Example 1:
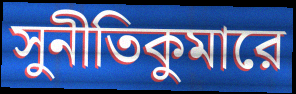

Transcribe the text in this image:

সুনীতিকুমারে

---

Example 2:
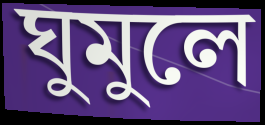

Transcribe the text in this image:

ঘুমুলে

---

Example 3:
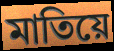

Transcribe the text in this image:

মাতিয়ে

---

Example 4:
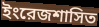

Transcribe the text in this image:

ইংরেজশাসিত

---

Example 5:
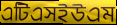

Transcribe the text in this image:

এটিএসইউএম